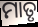
ମାତୃ